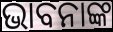
ଭାବନାଙ୍କ